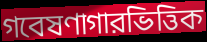
গবেষণাগারভিত্তিক